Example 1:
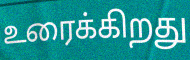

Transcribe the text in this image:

உரைக்கிறது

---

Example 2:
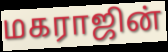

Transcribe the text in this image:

மகராஜின்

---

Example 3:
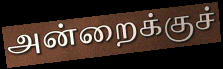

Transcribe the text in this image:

அன்றைக்குச்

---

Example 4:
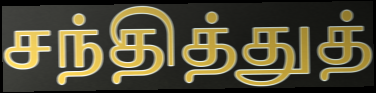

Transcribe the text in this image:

சந்தித்துத்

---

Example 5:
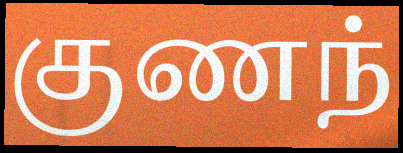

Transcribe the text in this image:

குணந்